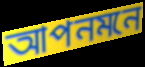
আপনমনে